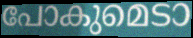
പോകുമെടാ